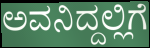
ಅವನಿದ್ದಲ್ಲಿಗೆ